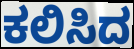
ಕಲಿಸಿದ